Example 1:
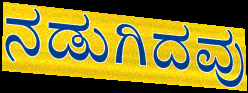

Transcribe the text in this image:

ನಡುಗಿದವು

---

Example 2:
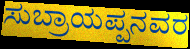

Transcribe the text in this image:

ಸುಬ್ರಾಯಪ್ಪನವರ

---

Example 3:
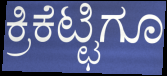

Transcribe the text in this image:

ಕ್ರಿಕೆಟ್ಟಿಗೂ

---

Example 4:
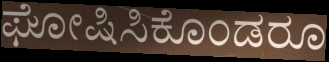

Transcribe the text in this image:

ಘೋಷಿಸಿಕೊಂಡರೂ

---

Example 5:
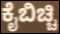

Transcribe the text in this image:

ಕೈಬಿಚ್ಚಿ